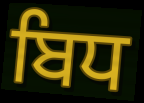
ਬਿਧ